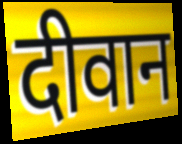
दीवान